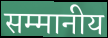
सम्मानीय